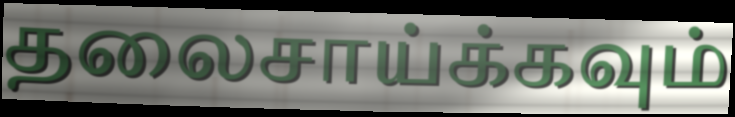
தலைசாய்க்கவும்